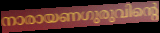
നാരായണഗുരുവിന്റെ